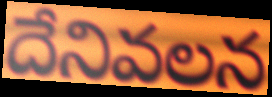
దేనివలన